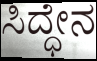
ಸಿದ್ಧೇನ